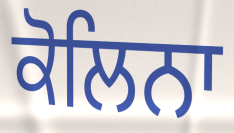
ਕੋਲਿਨਾ